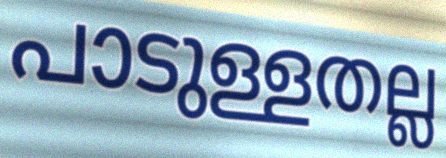
പാടുള്ളതല്ല